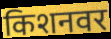
किशनवर